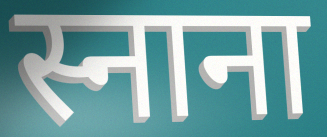
स्नाना